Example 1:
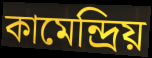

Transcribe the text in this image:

কামেন্দ্রিয়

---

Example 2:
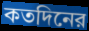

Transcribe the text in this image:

কতদিনের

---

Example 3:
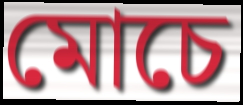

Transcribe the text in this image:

মোচে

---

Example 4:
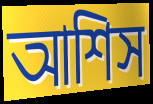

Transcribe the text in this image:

আশিস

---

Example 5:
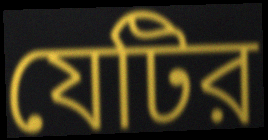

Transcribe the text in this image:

যেটির